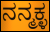
ನನ್ಮಕ್ಳ